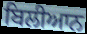
ਬਿਲੀਆਨ